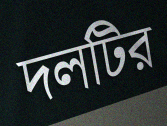
দলটির